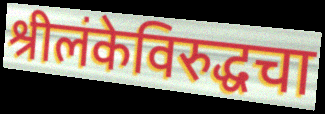
श्रीलंकेविरुद्धचा